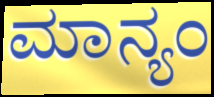
ಮಾನ್ಯಂ